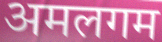
अमलगम